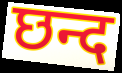
छन्द